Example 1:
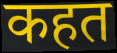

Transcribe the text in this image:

कहत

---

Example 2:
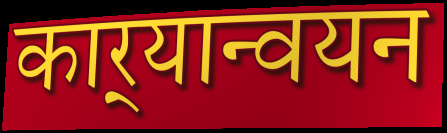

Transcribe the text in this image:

कार्यान्वयन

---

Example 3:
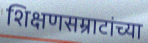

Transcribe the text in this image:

शिक्षणसम्राटांच्या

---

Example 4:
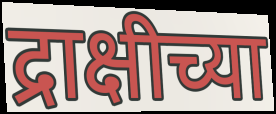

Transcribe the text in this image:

द्राक्षीच्या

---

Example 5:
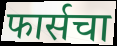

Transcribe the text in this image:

फार्सचा